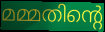
മമ്മതിന്റെ